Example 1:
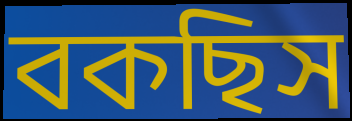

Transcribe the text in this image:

বকছিস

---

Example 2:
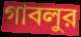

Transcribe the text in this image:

গাবলুর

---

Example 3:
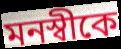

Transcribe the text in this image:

মনস্বীকে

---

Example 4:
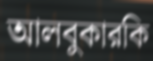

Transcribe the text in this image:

আলবুকারকি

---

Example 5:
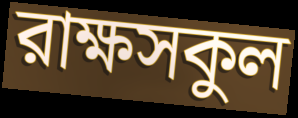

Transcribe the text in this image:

রাক্ষসকুল